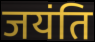
जयंति